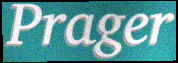
Prager